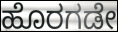
ಹೊರಗಡೇ